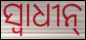
ସ୍ଵାଧୀନ୍